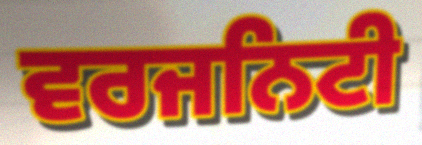
ਵਰਜਨਿਟੀ